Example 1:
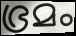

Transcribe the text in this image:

ഭ്രമം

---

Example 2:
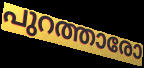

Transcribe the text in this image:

പുറത്താരോ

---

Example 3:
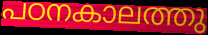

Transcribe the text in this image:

പഠനകാലത്തു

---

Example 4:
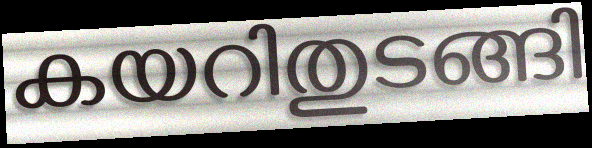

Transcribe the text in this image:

കയറിതുടങ്ങി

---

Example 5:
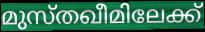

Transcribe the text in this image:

മുസ്തഖീമിലേക്ക്